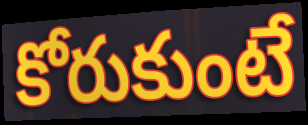
కోరుకుంటే